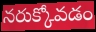
నరుక్కోవడం